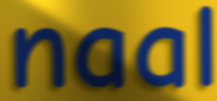
naal